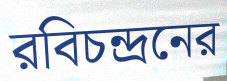
রবিচন্দ্রনের